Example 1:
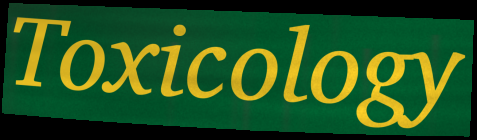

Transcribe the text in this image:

Toxicology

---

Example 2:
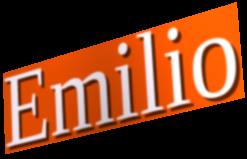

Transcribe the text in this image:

Emilio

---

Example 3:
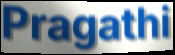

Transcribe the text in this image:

Pragathi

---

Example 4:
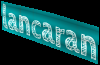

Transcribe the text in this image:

lancaran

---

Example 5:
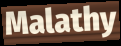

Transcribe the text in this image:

Malathy